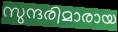
സുന്ദരിമാരായ